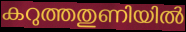
കറുത്തതുണിയിൽ